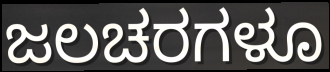
ಜಲಚರಗಳೂ